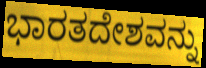
ಭಾರತದೇಶವನ್ನು